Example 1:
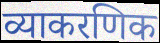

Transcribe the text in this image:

व्याकरणिक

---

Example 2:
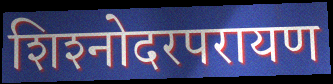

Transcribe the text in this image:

शिश्नोदरपरायण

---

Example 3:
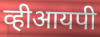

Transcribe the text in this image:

व्हीआयपी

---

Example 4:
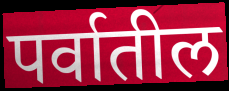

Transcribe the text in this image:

पर्वातील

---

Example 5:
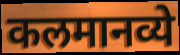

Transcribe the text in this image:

कलमानव्ये